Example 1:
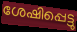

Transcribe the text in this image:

ശേഷിപ്പെട്ടു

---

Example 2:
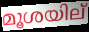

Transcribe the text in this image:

മൂശയില്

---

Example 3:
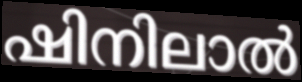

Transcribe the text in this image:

ഷിനിലാൽ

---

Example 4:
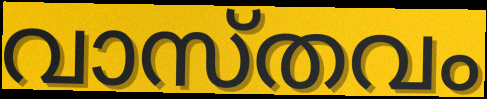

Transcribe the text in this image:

വാസ്തവം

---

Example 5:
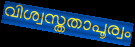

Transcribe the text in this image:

വിശ്വസ്തതാപൂര്വം